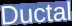
Ductal